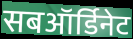
सबऑर्डिनेट